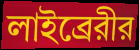
লাইব্রেরীর